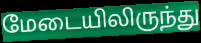
மேடையிலிருந்து